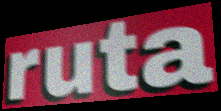
ruta